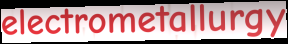
electrometallurgy